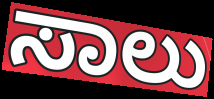
ಸಾಲು